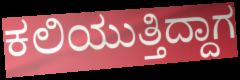
ಕಲಿಯುತ್ತಿದ್ದಾಗ